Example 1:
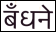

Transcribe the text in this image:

बँधने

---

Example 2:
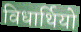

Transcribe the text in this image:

विधार्थियो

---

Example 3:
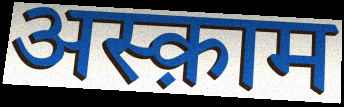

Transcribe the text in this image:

अस्क़ाम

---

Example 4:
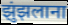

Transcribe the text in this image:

झुंझलाना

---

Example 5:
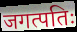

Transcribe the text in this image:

जगत्पतिः